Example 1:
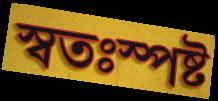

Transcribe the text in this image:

স্বতঃস্পষ্ট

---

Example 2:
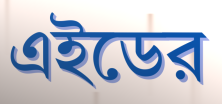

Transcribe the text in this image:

এইডের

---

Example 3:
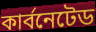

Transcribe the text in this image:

কার্বনেটেড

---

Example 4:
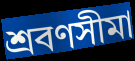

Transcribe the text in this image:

শ্রবণসীমা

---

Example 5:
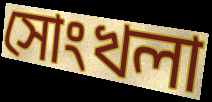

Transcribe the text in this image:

সোংখলা